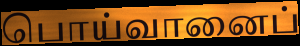
பொய்வானைப்